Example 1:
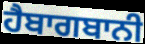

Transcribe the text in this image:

ਹੈਬਾਗਬਾਨੀ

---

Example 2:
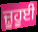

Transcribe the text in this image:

ਜ਼ੂਹੂਈ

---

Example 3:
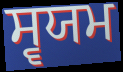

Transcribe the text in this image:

ਸ੍ਵਯਮ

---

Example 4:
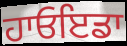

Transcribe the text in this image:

ਹਾਓਇਡਾ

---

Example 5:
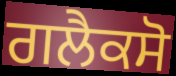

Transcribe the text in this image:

ਗਲੈਕਸੋ